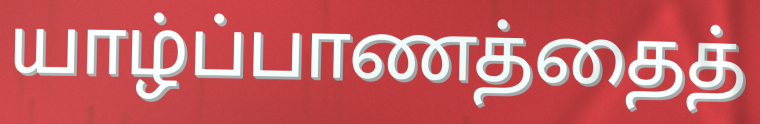
யாழ்ப்பாணத்தைத்